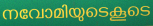
നവോമിയുടെകൂടെ